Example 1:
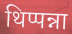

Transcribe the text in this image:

थिप्पन्ना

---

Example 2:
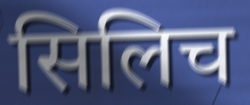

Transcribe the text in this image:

सिलिच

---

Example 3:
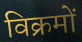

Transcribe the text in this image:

विक्रमों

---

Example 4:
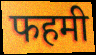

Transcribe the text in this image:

फहमी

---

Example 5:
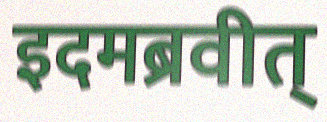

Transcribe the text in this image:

इदमब्रवीत्